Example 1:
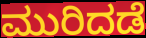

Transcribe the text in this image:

ಮುರಿದಡೆ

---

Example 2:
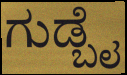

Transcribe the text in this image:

ಗುಡ್ಬೈ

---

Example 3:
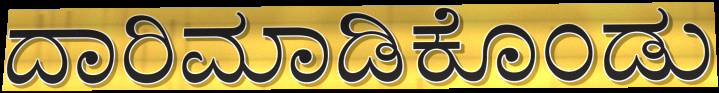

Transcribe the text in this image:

ದಾರಿಮಾಡಿಕೊಂಡು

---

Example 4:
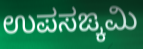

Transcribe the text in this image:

ಉಪಸಙ್ಕಮಿ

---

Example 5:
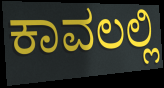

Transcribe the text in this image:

ಕಾವಲಲ್ಲಿ